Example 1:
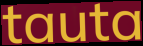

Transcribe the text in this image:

tauta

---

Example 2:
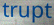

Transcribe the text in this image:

trupt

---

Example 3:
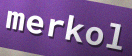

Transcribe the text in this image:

merkol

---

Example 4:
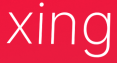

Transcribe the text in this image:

xing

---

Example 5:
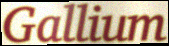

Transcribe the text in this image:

Gallium